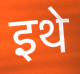
इथे